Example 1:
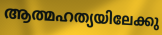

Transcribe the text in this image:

ആത്മഹത്യയിലേക്കു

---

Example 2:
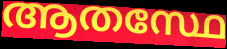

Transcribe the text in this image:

ആതസ്ഥേ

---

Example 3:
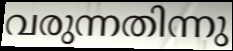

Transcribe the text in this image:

വരുന്നതിന്നു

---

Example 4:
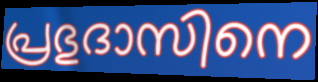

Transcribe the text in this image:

പ്രഭുദാസിനെ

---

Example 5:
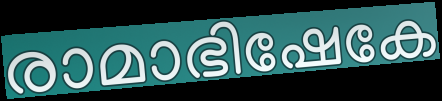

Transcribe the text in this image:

രാമാഭിഷേകേ